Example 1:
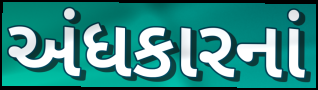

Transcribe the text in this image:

અંધકારનાં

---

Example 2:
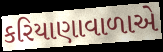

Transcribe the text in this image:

કરિયાણાવાળાએ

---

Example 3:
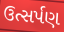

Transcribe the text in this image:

ઉત્સર્પણ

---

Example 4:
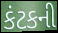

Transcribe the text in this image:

કંટકની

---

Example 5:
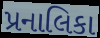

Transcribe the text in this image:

પ્રનાલિકા